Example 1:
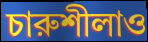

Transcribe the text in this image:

চারুশীলাও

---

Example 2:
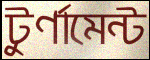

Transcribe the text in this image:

টুর্ণামেন্ট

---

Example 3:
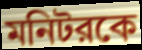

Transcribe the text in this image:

মনিটরকে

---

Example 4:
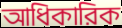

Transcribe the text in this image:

আধিকারিক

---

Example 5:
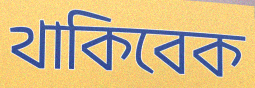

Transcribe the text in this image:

থাকিবেক